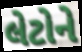
લેટોને